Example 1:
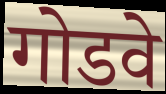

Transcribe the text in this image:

गोडवे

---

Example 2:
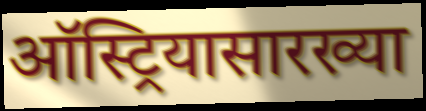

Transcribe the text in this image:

ऑस्ट्रियासारख्या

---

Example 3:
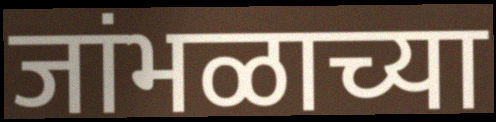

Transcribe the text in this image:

जांभळाच्या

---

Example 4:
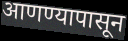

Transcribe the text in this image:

आणण्यापासून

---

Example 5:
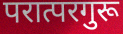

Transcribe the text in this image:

परात्परगुरू